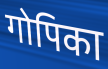
गोपिका